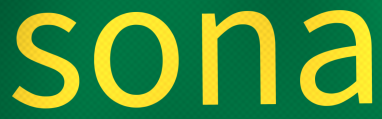
sona